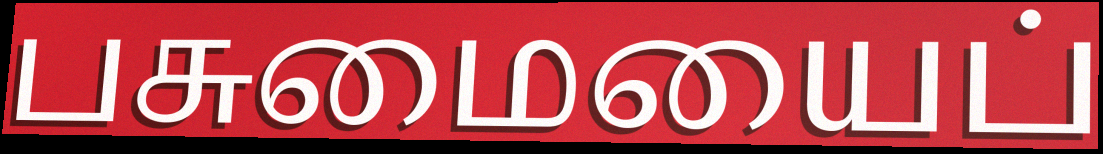
பசுமையைப்